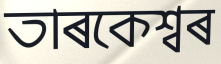
তাৰকেশ্বৰ